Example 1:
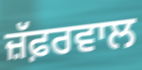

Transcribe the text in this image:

ਜ਼ੱਫ਼ਰਵਾਲ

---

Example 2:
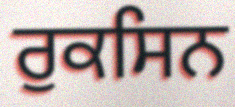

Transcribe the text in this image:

ਰੁਕਸਿਨ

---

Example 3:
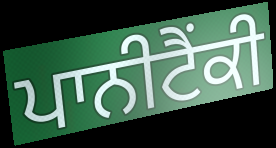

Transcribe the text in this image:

ਪਾਨੀਟੈਂਕੀ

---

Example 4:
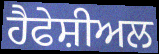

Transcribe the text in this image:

ਹੈਫੇਸ਼ੀਅਲ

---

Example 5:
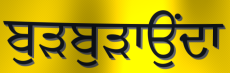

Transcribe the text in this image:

ਬੁੜਬੁੜਾਉਂਦਾ